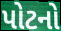
પોટનો